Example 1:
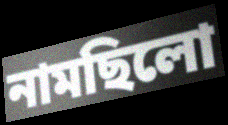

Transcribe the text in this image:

নামছিলো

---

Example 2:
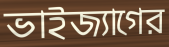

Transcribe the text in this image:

ভাইজ্যাগের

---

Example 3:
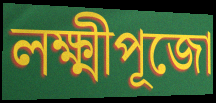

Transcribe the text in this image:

লক্ষ্মীপূজো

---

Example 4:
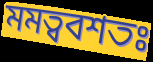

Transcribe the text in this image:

মমত্ববশতঃ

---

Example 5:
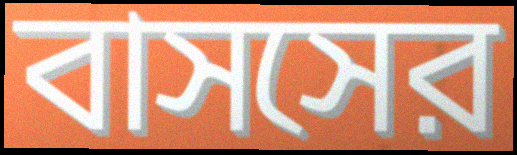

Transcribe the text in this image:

বাসসের